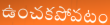
ఉంచకపోవటం